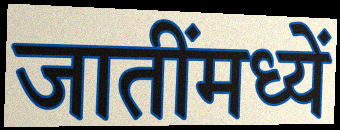
जातींमध्यें